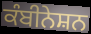
ਕੰਬੀਨੇਸ਼ਨ